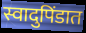
स्वादुपिंडात